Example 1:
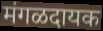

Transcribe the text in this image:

मंगळदायक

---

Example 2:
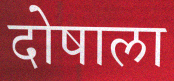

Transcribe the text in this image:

दोषाला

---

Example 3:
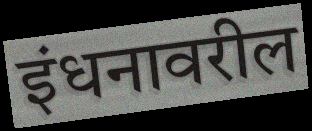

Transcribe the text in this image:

इंधनावरील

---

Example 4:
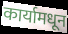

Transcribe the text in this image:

कार्यामधून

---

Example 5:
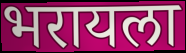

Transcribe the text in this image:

भरायला